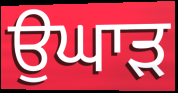
ਉਘਾੜ